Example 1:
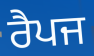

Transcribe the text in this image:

ਰੈਪਜ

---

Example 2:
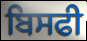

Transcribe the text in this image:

ਬਿਸਫੀ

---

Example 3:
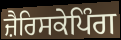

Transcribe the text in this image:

ਜ਼ੈਰਿਸਕੇਪਿੰਗ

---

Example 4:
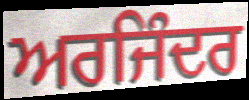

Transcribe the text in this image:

ਅਰਜਿੰਦਰ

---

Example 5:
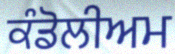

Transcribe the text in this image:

ਕੰਡੋਲੀਅਮ